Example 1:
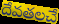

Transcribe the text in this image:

దేవతలచే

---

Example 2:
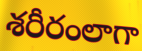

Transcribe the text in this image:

శరీరంలాగా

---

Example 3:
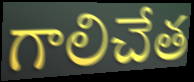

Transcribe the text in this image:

గాలిచేత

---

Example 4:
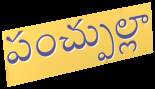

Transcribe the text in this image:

పంచ్పుల్లా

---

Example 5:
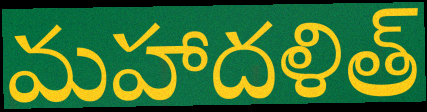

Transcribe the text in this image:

మహాదళిత్